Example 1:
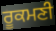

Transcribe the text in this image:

ਰੂਕਮਣੀ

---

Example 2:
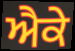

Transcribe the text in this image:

ਐਕੇ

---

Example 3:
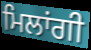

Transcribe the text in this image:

ਮਿਲਾਂਗੀ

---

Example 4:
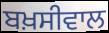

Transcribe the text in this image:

ਬਖ਼ਸੀਵਾਲ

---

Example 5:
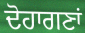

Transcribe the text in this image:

ਦੋਹਾਗਣਾਂ